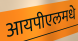
आयपीएलमधे